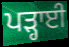
ਪੜ੍ਹਾਈ